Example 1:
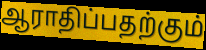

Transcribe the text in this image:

ஆராதிப்பதற்கும்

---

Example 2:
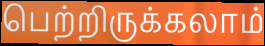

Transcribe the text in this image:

பெற்றிருக்கலாம்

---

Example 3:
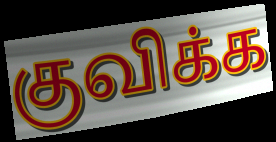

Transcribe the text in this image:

குவிக்க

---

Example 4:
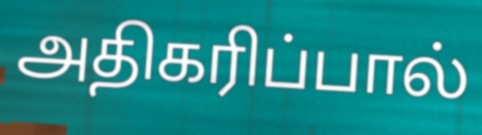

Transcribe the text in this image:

அதிகரிப்பால்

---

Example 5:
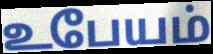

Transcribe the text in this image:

உபேயம்